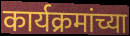
कार्यक्रमांच्या